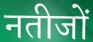
नतीजों